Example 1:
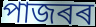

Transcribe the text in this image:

পাজৰৰ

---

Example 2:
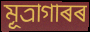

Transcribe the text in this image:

মূত্ৰাগাৰৰ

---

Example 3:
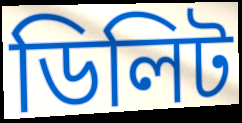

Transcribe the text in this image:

ডিলিট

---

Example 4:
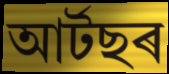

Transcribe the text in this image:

আৰ্টছৰ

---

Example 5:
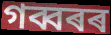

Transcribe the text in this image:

গব্বৰৰ